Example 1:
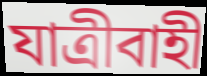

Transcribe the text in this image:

যাত্রীবাহী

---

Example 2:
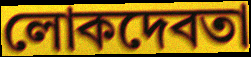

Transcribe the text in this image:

লোকদেবতা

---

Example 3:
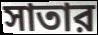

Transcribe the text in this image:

সাতার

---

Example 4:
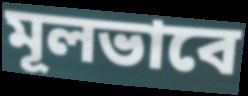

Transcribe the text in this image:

মূলভাবে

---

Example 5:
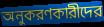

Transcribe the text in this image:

অনুকরণকারীদের